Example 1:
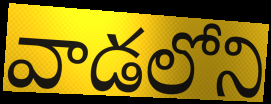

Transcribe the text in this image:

వాడలోని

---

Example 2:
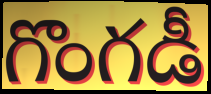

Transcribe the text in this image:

గొంగడీ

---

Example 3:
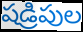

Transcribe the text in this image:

షడ్రిపుల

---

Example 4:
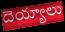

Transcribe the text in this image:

దెయ్యాలు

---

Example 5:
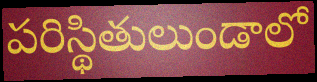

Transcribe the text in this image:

పరిస్థితులుండాలో